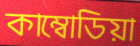
কাম্বোডিয়া